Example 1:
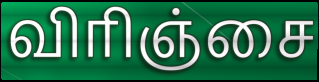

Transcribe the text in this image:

விரிஞ்சை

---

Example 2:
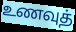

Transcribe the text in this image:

உணவுத்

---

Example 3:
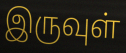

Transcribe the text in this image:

இருவுள்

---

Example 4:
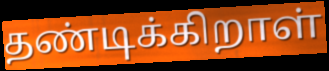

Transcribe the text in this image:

தண்டிக்கிறாள்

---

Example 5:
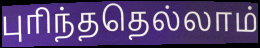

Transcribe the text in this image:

புரிந்ததெல்லாம்